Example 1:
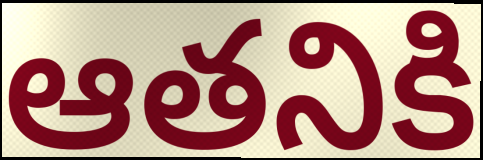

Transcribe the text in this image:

ఆతనికి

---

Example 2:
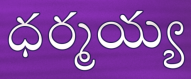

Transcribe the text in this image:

ధర్మయ్య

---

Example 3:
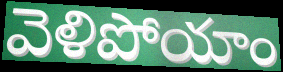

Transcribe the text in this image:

వెళిపోయాం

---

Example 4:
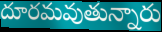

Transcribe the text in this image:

దూరమవుతున్నారు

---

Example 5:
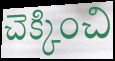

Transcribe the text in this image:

చెక్కించి